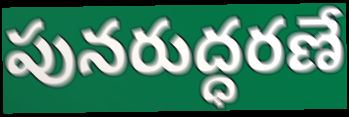
పునరుద్ధరణే